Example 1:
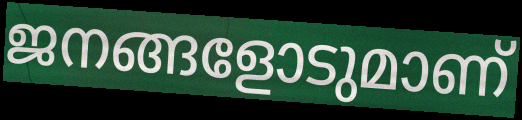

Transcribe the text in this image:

ജനങ്ങളോടുമാണ്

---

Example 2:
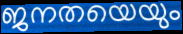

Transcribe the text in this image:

ജനതയെയും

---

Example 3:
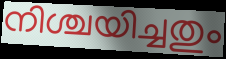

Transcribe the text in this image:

നിശ്ചയിച്ചതും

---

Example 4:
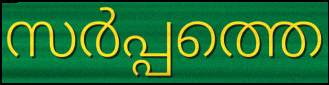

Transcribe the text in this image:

സർപ്പത്തെ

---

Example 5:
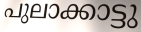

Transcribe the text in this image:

പുലാക്കാട്ടു